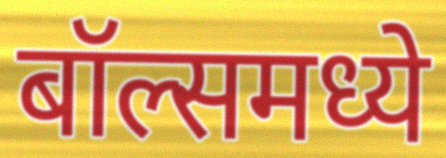
बॉल्समध्ये